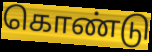
கொண்டு